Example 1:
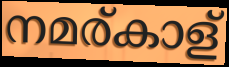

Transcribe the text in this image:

നമര്കാള്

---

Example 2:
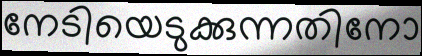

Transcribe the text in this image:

നേടിയെടുക്കുന്നതിനോ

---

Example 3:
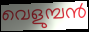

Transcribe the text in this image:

വെളുമ്പൻ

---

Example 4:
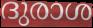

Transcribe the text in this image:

ദുരാശ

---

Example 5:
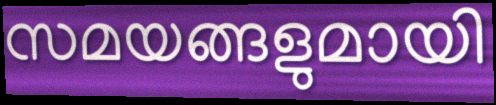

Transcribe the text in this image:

സമയങ്ങളുമായി